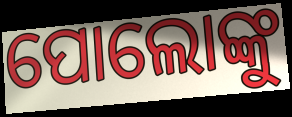
ପୋଲୋଙ୍କୁ